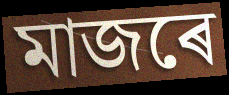
মাজৰে